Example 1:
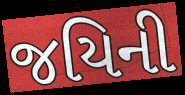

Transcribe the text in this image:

જયિની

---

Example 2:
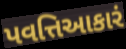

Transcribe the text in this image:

પવત્તિઆકારં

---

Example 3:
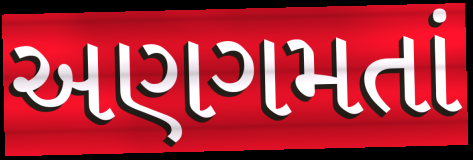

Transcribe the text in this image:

અણગમતાં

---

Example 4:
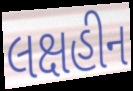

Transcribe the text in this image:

લક્ષહીન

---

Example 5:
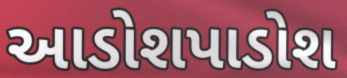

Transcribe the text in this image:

આડોશપાડોશ